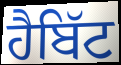
ਹੈਬਿੱਟ